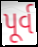
પૂર્વ